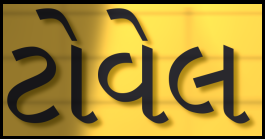
ટોવેલ